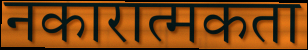
नकारात्मकता